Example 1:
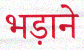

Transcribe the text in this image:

भड़ाने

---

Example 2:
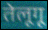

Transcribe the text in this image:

तेलूगू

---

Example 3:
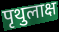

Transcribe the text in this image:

पृथुलाक्ष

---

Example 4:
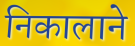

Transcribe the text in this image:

निकालाने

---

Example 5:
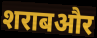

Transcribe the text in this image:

शराबऔर